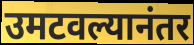
उमटवल्यानंतर